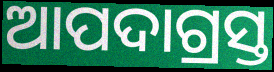
ଆପଦାଗ୍ରସ୍ତ